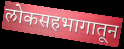
लोकसहभागातून